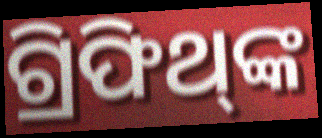
ଗ୍ରିଫିଥ୍‌ଙ୍କ